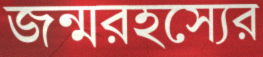
জন্মরহস্যের